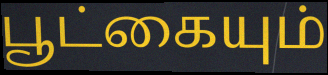
பூட்கையும்